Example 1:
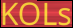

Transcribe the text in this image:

KOLs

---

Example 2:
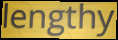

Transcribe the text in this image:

lengthy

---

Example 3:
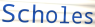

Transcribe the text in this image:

Scholes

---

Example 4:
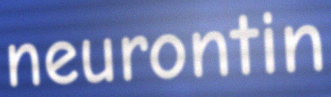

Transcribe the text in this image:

neurontin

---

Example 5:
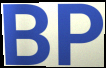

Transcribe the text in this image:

BP